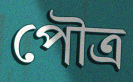
পৌত্র